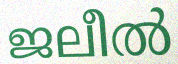
ജലീൽ